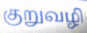
குறுவழி